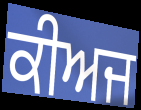
ਕੀਅਜ